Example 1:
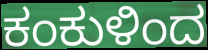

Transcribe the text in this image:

ಕಂಕುಳಿಂದ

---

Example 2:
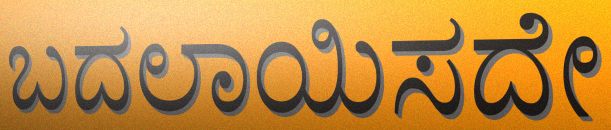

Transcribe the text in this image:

ಬದಲಾಯಿಸದೇ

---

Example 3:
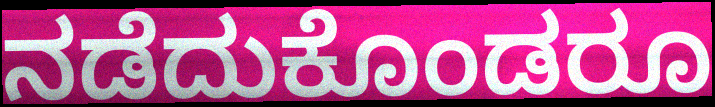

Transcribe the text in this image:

ನಡೆದುಕೊಂಡರೂ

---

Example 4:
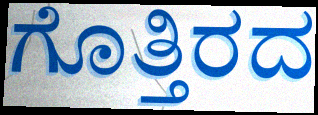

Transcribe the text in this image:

ಗೊತ್ತಿರದ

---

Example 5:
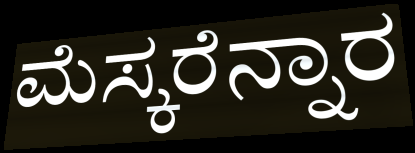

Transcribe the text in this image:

ಮೆಸ್ಕರೆನ್ನಾರ